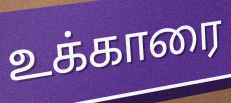
உக்காரை